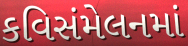
કવિસંમેલનમાં